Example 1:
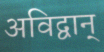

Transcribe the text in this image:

अविद्वान्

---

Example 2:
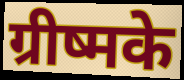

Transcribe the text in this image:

ग्रीष्मके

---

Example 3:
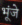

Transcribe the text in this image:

भूंजे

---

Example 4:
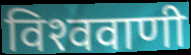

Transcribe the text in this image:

विश्ववाणी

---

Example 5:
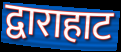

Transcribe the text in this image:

द्वाराहाट